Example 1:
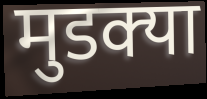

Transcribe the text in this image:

मुडक्या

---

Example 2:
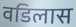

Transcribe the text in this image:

वडिलास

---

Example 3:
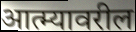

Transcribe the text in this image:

आत्म्यावरील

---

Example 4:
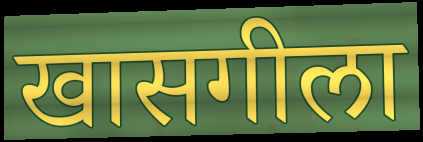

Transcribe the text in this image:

खासगीला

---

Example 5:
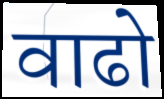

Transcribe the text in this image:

वाढो